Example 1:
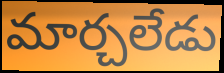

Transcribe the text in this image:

మార్చలేడు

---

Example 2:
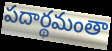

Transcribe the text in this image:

పదార్థమంతా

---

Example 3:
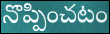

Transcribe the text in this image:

నొప్పించటం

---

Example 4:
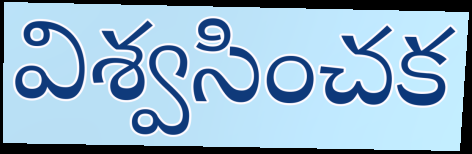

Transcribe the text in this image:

విశ్వసించక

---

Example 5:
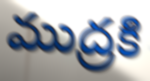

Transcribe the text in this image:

ముద్రకి